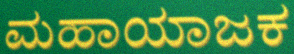
ಮಹಾಯಾಜಕ